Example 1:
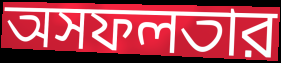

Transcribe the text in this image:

অসফলতার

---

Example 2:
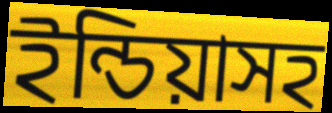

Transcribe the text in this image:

ইন্ডিয়াসহ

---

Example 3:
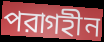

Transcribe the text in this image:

পরাগহীন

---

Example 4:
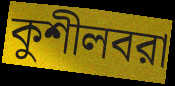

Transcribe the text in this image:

কুশীলবরা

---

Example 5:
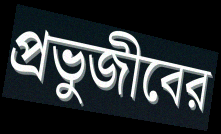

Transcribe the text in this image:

প্রভুজীবের